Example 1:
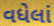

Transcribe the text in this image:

વધેલાં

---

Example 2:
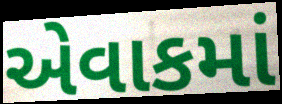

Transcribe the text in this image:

એવાકમાં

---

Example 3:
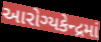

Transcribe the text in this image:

આરોગ્યકેન્દ્રમાં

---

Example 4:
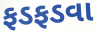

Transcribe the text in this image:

ફડફડવા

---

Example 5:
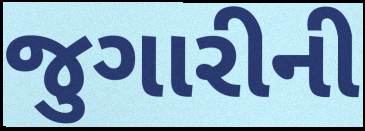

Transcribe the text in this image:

જુગારીની